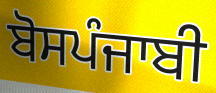
ਬੋਸਪੰਜਾਬੀ